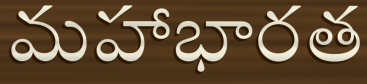
మహాభారత